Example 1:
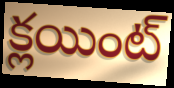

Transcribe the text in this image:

క్లయింట్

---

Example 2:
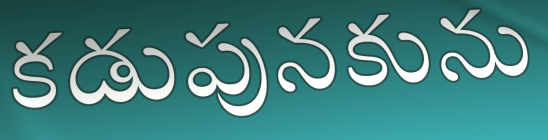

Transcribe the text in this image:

కడుపునకును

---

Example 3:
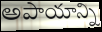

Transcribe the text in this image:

అపాయాన్ని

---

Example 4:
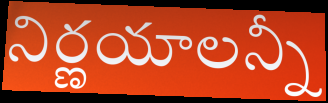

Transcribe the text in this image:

నిర్ణయాలన్నీ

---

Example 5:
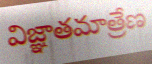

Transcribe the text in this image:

విజ్ఞాతమాత్రేణ